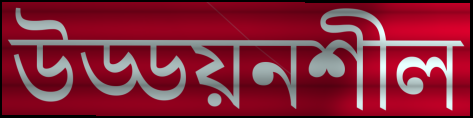
উড্ডয়নশীল